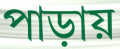
পাড়ায়